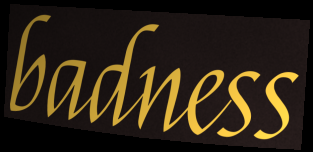
badness